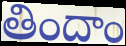
తిందాం